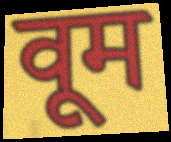
वूम